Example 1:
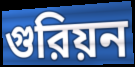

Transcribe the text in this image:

গুরিয়ন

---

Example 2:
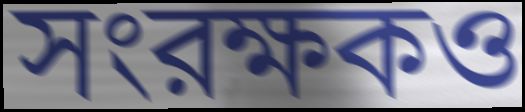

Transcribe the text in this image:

সংরক্ষকও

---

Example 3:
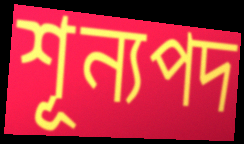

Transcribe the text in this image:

শূন্যপদ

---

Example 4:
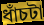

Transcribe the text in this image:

ধাঁচটা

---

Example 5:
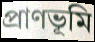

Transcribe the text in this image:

প্রাণভূমি